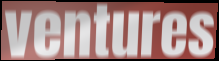
ventures